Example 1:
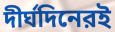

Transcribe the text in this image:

দীর্ঘদিনেরই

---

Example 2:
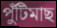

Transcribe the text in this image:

পুঁটিমাছ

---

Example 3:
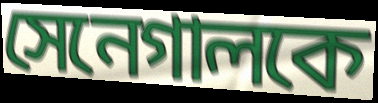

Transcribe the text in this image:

সেনেগালকে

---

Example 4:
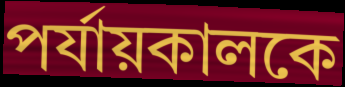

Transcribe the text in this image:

পর্যায়কালকে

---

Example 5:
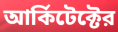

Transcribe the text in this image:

আর্কিটেক্টের